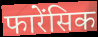
फारेंसिक